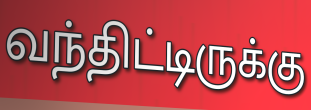
வந்திட்டிருக்கு